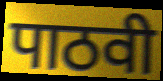
पाठवी